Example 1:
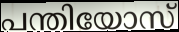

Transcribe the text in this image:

പന്തിയോസ്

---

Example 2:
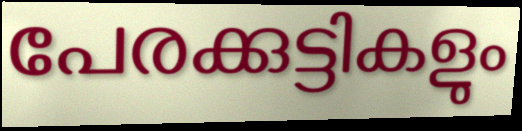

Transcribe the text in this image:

പേരക്കുട്ടികളും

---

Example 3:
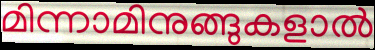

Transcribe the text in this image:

മിന്നാമിനുങ്ങുകളാൽ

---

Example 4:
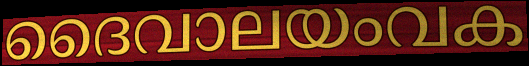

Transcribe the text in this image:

ദൈവാലയംവക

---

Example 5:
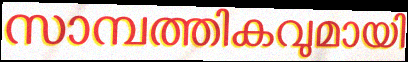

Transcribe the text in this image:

സാമ്പത്തികവുമായി